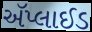
ઍપ્લાઈડ